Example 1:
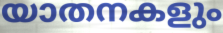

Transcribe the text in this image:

യാതനകളും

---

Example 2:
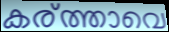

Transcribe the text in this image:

കര്ത്താവെ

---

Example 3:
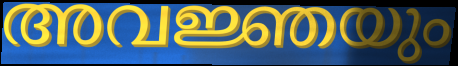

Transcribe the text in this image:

അവജ്ഞയും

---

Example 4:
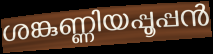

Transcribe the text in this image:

ശങ്കുണ്ണിയപ്പൂപ്പൻ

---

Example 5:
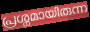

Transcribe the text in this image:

പ്രശ്നമായിരുന്ന